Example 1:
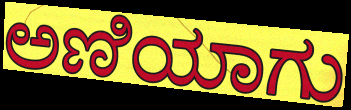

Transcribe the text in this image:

ಅಣಿಯಾಗು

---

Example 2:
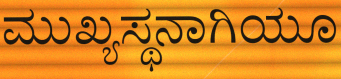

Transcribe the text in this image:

ಮುಖ್ಯಸ್ಥನಾಗಿಯೂ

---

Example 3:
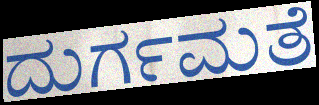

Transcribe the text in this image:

ದುರ್ಗಮತೆ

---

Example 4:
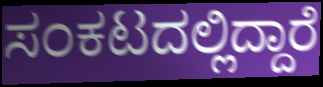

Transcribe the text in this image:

ಸಂಕಟದಲ್ಲಿದ್ದಾರೆ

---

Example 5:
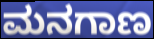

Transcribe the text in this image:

ಮನಗಾಣ